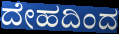
ದೇಹದಿಂದ